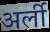
अर्ली